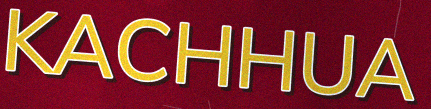
KACHHUA